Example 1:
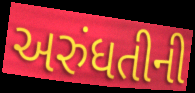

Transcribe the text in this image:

અરુંધતીની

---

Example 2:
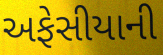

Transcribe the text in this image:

અફેસીયાની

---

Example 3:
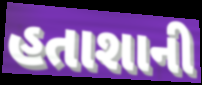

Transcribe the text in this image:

હતાશાની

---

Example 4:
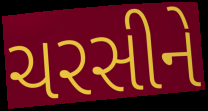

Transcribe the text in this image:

ચરસીને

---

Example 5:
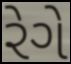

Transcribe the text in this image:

રેગે